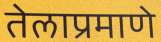
तेलाप्रमाणे